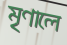
মৃণালে